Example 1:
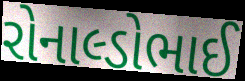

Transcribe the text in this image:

રોનાલ્ડોભાઈ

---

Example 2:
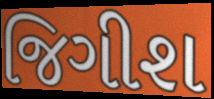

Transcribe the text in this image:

જિગીશ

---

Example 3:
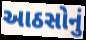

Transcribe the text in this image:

આઠસોનું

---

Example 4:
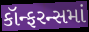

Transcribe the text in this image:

કૉન્ફરન્સમાં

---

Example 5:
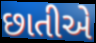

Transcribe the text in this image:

છાતીએ